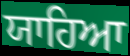
ਯਾਹਿਆ